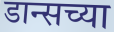
डान्सच्या